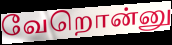
வேறொன்னு